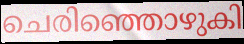
ചെരിഞ്ഞൊഴുകി